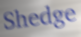
Shedge